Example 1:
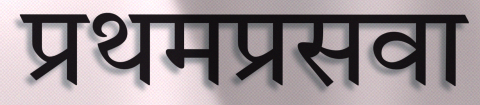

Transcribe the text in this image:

प्रथमप्रसवा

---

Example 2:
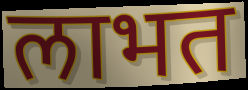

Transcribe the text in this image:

लाभत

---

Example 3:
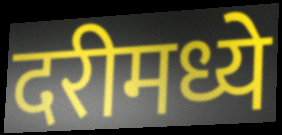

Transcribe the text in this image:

दरीमध्ये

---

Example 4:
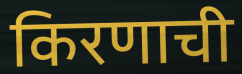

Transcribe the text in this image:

किरणाची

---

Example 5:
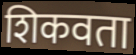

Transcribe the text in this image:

शिकवता